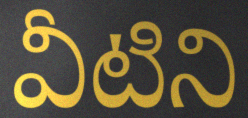
వీటిని